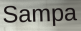
Sampa